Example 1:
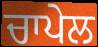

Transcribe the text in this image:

ਚਾਪੇਲ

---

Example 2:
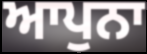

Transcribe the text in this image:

ਆਪੁਨਾ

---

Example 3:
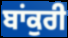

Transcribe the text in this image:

ਬਾਂਕੁਰੀ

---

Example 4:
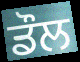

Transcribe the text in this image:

ਡੌਲ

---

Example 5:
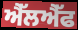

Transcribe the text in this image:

ਐੱਲਐੱਫ